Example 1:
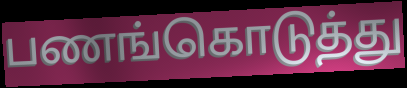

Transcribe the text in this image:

பணங்கொடுத்து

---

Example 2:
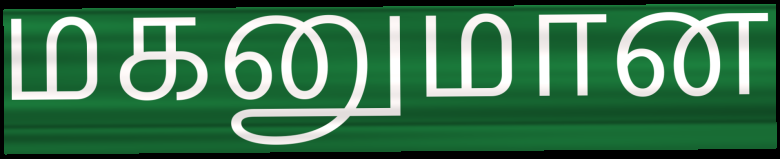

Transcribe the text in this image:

மகனுமான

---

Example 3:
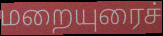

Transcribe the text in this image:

மறையுரைச்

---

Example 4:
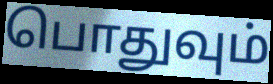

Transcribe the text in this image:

பொதுவும்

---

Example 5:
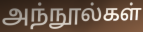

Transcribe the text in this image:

அந்நூல்கள்